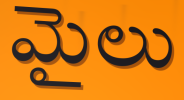
మైలు